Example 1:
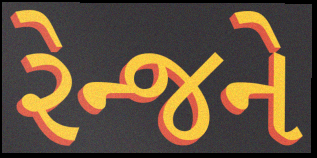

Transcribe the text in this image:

રેન્જને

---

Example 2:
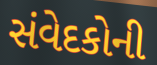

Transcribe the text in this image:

સંવેદકોની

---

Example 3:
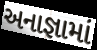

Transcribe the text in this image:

અનાજ્ઞામાં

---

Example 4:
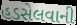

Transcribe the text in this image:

હડસેલવાની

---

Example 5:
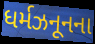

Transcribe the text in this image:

ધર્મઝનૂનના